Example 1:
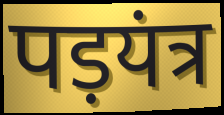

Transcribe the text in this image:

पड़यंत्र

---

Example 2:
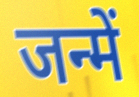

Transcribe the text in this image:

जन्में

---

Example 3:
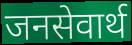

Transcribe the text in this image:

जनसेवार्थ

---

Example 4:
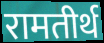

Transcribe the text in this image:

रामतीर्थ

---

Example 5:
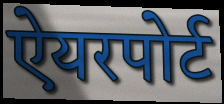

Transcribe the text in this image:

ऐयरपोर्ट